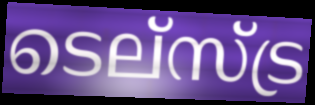
ടെല്സ്ട്ര